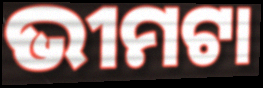
ଭୀମଟା